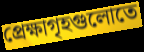
প্রেক্ষাগৃহগুলোতে